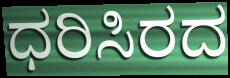
ಧರಿಸಿರದ